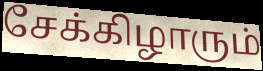
சேக்கிழாரும்